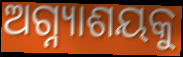
ଅଗ୍ନ୍ୟାଶୟକୁ